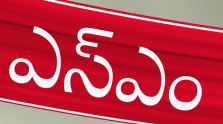
ఎస్ఎం